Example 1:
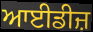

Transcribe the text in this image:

ਆਈਡੀਜ਼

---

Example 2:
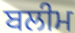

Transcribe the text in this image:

ਬਲੀਮ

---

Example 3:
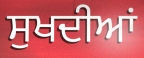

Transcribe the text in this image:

ਸੁਖਦੀਆਂ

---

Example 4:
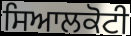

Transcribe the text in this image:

ਸਿਆਲਕੋਟੀ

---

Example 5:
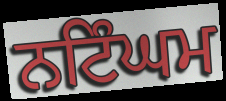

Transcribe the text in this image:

ਨਟਿੰਘਮ